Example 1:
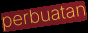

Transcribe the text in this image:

perbuatan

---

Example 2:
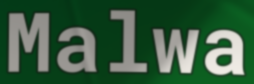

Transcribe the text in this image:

Malwa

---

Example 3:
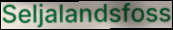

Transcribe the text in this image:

Seljalandsfoss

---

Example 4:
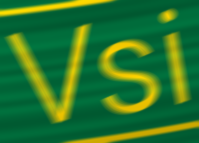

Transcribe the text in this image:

Vsi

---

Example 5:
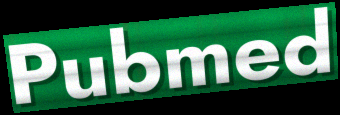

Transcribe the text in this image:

Pubmed